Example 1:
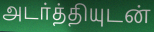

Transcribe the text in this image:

அடர்த்தியுடன்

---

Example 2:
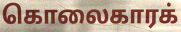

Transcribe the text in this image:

கொலைகாரக்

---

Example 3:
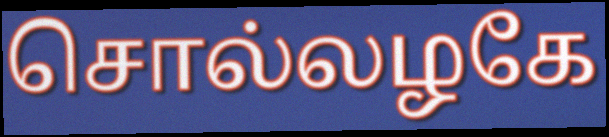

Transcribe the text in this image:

சொல்லழகே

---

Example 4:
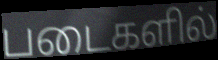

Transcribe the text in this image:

படைகளில்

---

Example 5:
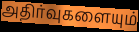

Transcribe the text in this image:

அதிர்வுகளையும்